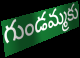
గుండమ్మకు